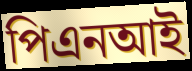
পিএনআই